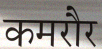
कमरौर